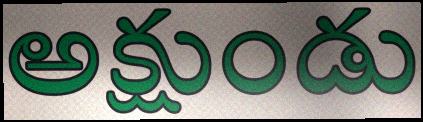
అక్షుండు